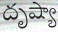
దృష్యా